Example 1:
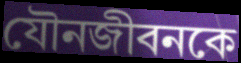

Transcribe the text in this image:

যৌনজীবনকে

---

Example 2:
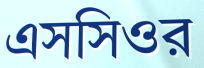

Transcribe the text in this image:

এসসিওর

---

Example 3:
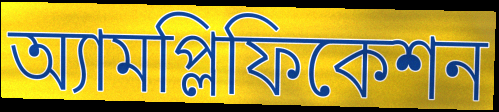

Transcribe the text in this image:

অ্যামপ্লিফিকেশন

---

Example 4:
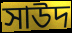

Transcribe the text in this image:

সাউদ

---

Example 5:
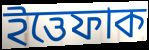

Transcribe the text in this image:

ইত্তেফাক